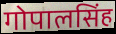
गोपालसिंह